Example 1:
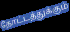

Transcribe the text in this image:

தோட்டத்துக்கும்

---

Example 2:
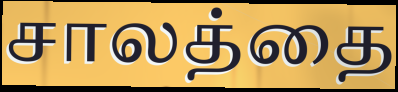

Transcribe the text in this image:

சாலத்தை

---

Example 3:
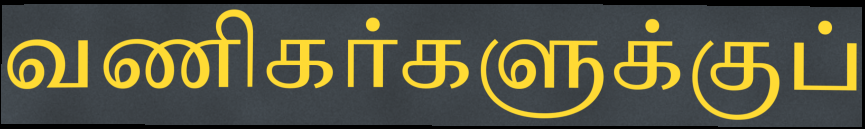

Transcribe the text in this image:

வணிகர்களுக்குப்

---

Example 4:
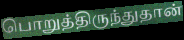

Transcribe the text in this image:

பொறுத்திருந்துதான்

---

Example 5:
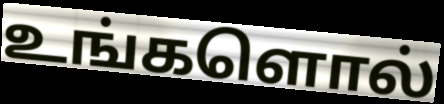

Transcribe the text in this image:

உங்களொல்